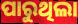
ପାରୁଥିଲା